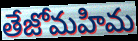
తేజోమహిమ